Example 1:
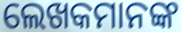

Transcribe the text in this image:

ଲେଖକମାନଙ୍କ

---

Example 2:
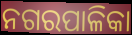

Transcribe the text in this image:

ନଗରପାଳିକା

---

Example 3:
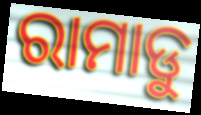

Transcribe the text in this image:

ରାମାଡୁ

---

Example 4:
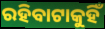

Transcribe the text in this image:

ରହିବାଟାକୁହିଁ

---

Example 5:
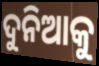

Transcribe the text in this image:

ଦୁନିଆକୁ